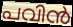
പവിൻ